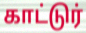
காட்டுர்